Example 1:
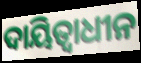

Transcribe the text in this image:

ଦାୟିତ୍ଵାଧୀନ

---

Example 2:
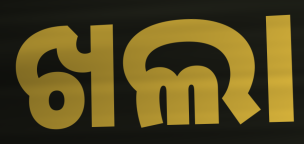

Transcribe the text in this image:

ଖଲା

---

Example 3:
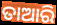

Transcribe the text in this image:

ତାଆରି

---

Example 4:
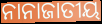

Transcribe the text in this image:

ନାନାଜାତୀୟ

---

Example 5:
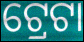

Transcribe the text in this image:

ଟ୍ରେଟା